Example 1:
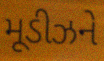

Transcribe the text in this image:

મૂડીઝને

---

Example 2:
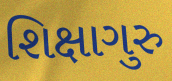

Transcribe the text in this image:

શિક્ષાગુરુ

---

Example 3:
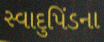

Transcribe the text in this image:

સ્વાદુપિંડના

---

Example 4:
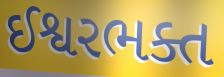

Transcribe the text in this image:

ઈશ્વરભક્ત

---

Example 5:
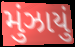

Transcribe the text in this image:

મુંઝાયું